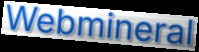
Webmineral